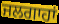
ਜਲਗਾਹਾਂ